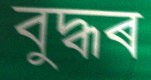
বুদ্ধৰ